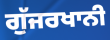
ਗੁੱਜਰਖਾਨੀ